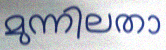
മുന്നിലതാ